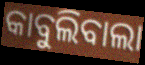
କାବୁଲିବାଲା